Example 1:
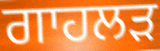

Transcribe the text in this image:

ਗਾਹਲੜ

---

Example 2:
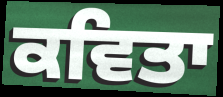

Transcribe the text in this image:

ਕਵਿਤਾ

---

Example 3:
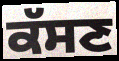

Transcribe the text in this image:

ਕੱਸਣ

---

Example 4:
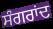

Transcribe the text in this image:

ਸੰਗਰਾਂਦ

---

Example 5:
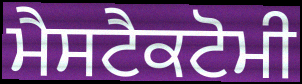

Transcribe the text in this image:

ਮੈਸਟੈਕਟੋਮੀ